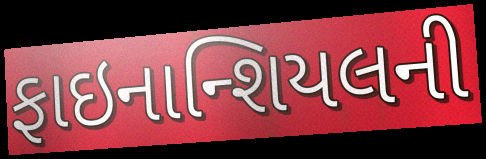
ફાઇનાન્શિયલની